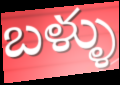
బళ్ళు